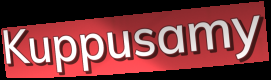
Kuppusamy